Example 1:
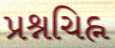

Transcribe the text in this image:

પ્રશ્નચિહ્ન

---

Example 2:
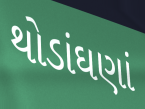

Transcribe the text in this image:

થોડાંઘણાં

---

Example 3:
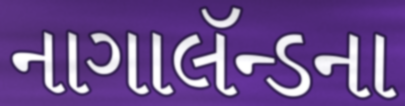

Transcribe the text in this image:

નાગાલૅન્ડના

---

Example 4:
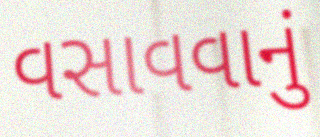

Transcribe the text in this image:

વસાવવાનું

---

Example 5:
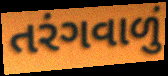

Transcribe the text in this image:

તરંગવાળું